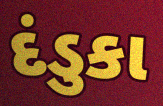
દંડુકા